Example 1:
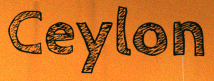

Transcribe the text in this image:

Ceylon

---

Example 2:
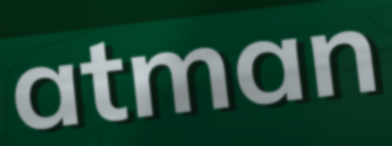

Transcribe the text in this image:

atman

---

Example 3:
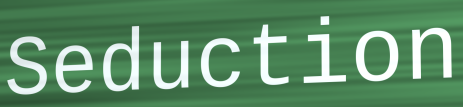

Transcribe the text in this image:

Seduction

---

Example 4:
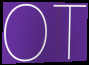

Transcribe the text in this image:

OT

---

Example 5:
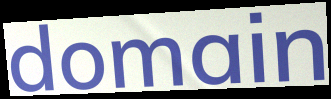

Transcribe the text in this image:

domain